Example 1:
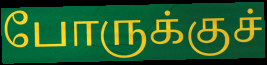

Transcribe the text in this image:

போருக்குச்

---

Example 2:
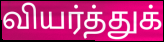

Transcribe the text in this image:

வியர்த்துக்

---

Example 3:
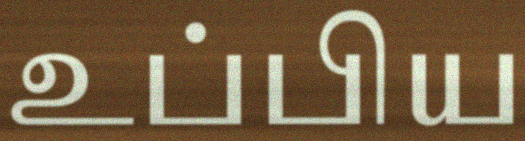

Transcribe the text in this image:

உப்பிய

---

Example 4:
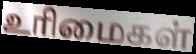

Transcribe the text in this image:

உரிமைகள்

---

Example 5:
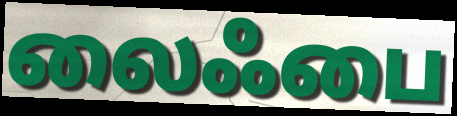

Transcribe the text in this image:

லைஃபை